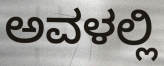
ಅವಳಲ್ಲಿ